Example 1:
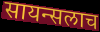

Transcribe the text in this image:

सायन्सलाच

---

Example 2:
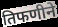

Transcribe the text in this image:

तिफणीने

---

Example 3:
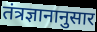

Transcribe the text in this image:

तंत्रज्ञानानुसार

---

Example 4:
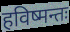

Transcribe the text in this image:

हविष्मन्तः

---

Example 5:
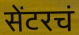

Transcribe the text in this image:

सेंटरचं